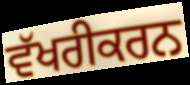
ਵੱਖਰੀਕਰਨ